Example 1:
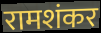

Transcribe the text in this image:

रामशंकर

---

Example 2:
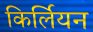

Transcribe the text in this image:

किर्लियन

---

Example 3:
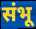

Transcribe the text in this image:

संभू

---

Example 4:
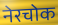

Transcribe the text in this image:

नेरचोक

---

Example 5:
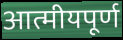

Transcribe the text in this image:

आत्मीयपूर्ण